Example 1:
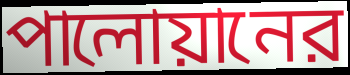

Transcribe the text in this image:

পালোয়ানের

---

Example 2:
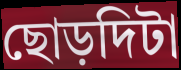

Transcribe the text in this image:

ছোড়দিটা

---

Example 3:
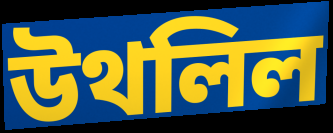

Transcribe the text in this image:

উথলিল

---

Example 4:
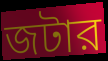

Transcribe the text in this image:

জটার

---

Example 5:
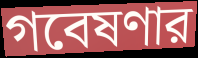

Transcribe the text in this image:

গবেষণার